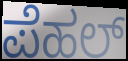
ಪೆಹಲ್